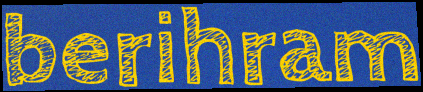
berihram